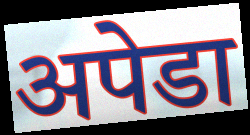
अपेडा